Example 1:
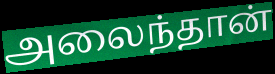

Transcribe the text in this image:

அலைந்தான்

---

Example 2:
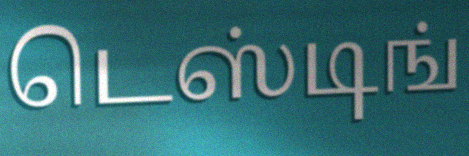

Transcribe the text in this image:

டெஸ்டிங்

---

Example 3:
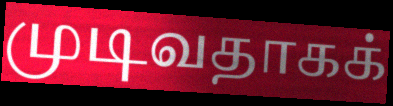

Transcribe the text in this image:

முடிவதாகக்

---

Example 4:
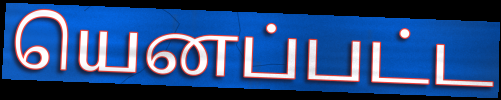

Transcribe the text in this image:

யெனப்பட்ட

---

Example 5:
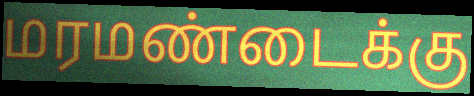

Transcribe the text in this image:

மரமண்டைக்கு